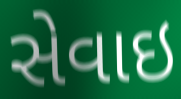
સેવાઇ